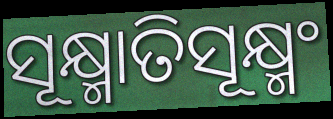
ସୂକ୍ଷ୍ମାତିସୂକ୍ଷ୍ମଂ